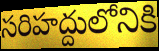
సరిహద్దులోనికి